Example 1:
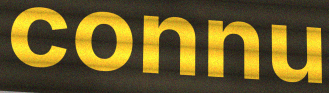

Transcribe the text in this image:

connu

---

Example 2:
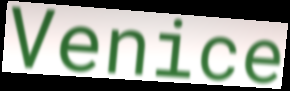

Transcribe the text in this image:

Venice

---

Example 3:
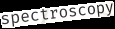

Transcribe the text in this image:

spectroscopy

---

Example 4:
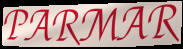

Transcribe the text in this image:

PARMAR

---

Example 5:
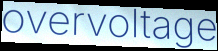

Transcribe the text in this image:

overvoltage